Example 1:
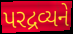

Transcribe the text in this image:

પરદ્રવ્યને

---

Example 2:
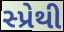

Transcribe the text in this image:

સ્પ્રેથી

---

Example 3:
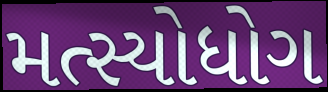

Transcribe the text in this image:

મત્સ્યોધોગ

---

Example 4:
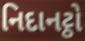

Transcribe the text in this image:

નિદાનટ્ઠો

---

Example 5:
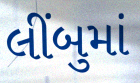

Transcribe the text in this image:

લીંબુમાં